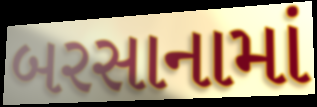
બરસાનામાં